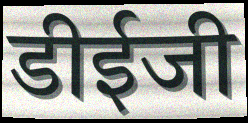
डीईजी